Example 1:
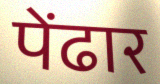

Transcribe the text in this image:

पेंढार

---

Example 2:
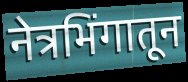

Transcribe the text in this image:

नेत्रभिंगातून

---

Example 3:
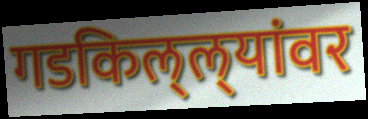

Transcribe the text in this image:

गडकिल्ल्यांवर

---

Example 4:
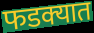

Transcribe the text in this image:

फडक्‍यात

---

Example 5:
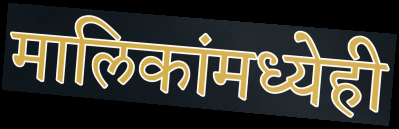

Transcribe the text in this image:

मालिकांमध्येही